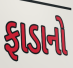
ફાડાનો